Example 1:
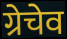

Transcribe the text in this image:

ग्रेचेव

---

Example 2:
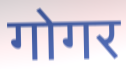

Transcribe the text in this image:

गोगर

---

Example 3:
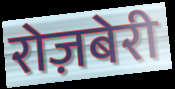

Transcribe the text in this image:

रोज़बेरी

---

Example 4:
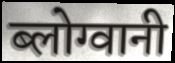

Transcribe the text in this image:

ब्लोग्वानी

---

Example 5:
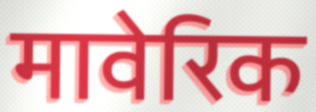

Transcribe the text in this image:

मावेरिक